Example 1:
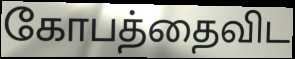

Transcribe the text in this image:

கோபத்தைவிட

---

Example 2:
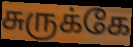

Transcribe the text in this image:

சுருக்கே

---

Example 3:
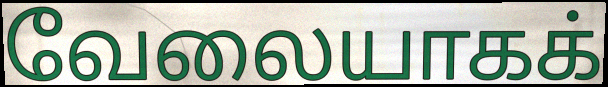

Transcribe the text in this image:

வேலையாகக்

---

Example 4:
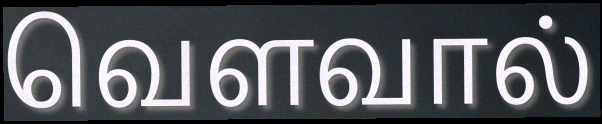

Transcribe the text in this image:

வெளவால்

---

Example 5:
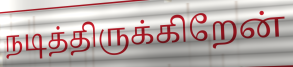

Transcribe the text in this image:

நடித்திருக்கிறேன்